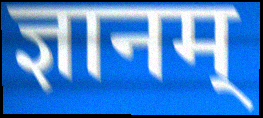
ज्ञानम्